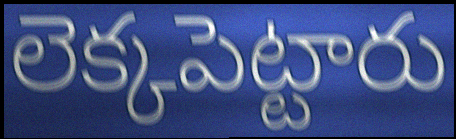
లెక్కపెట్టారు